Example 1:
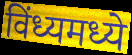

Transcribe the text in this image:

विंध्यमध्ये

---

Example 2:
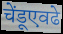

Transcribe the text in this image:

चेंडूएवढे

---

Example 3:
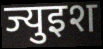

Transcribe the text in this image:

ज्युइश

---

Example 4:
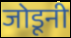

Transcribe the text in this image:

जोडूनी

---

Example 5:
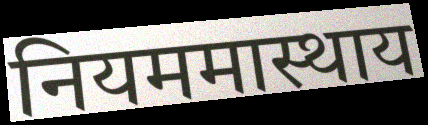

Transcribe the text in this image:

नियममास्थाय